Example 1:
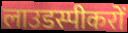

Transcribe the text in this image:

लाउडस्पीकरों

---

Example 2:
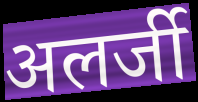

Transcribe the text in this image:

अलर्जी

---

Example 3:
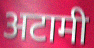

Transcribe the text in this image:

अटामी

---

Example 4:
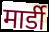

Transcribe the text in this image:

मार्डी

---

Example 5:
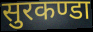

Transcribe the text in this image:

सुरकण्डा